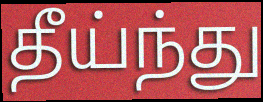
தீய்ந்து